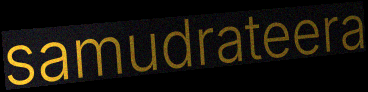
samudrateera